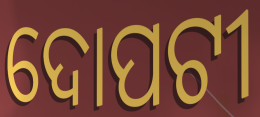
ଦୋପଟୀ